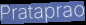
Prataprao